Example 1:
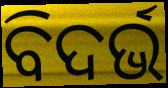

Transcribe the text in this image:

ବିଦର୍ଭ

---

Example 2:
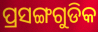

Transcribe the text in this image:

ପ୍ରସଙ୍ଗଗୁଡିକ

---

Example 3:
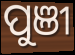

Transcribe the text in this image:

ପୁଞୀ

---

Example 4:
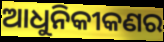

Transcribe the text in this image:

ଆଧୁନିକୀକଣର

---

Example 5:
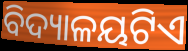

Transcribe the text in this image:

ବିଦ୍ୟାଳୟଟିଏ